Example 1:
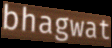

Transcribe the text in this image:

bhagwat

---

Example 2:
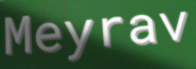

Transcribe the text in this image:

Meyrav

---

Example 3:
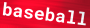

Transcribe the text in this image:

baseball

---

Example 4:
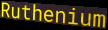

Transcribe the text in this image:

Ruthenium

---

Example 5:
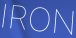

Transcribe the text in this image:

IRON